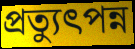
প্রত্যুৎপন্ন